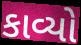
કાવ્યો